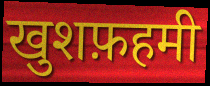
खुशफ़हमी